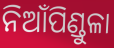
ନିଆଁପିଣ୍ଡୁଳା